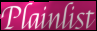
Plainlist